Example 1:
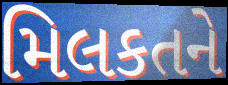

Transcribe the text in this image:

મિલકતને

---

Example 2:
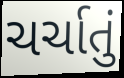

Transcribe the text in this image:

ચર્ચાતું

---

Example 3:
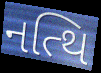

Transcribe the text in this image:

નત્થિ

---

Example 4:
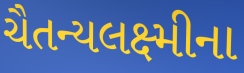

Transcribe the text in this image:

ચૈતન્યલક્ષ્મીના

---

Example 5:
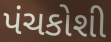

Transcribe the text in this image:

પંચકોશી